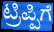
ಟ್ರಿಪ್ಪಿಗೆ